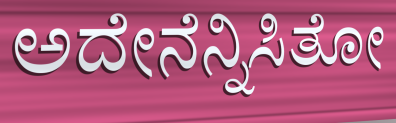
ಅದೇನೆನ್ನಿಸಿತೋ